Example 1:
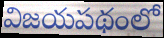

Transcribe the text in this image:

విజయపథంలో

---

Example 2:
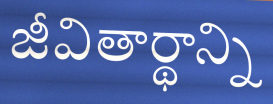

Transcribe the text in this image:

జీవితార్థాన్ని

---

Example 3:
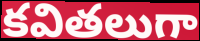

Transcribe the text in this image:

కవితలుగా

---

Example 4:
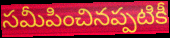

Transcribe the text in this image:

సమీపించినప్పటికీ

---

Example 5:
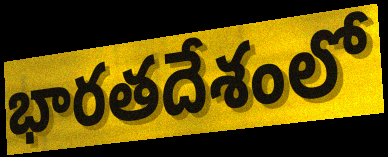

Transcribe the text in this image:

భారతదేశంలో